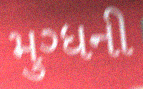
મુગ્ધની